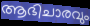
ആഭിചാരവും